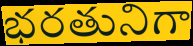
భరతునిగా